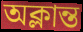
অক্লান্ত